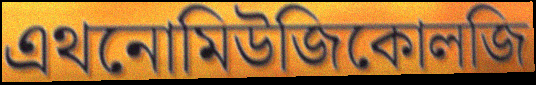
এথনোমিউজিকোলজি